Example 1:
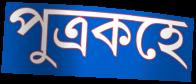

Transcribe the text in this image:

পুত্ৰকহে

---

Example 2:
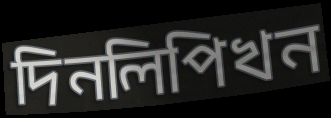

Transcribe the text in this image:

দিনলিপিখন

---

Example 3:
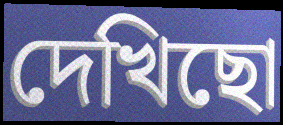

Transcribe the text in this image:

দেখিছো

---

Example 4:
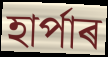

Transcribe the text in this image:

হাৰ্পাৰ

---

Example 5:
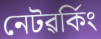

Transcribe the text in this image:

নেটৱৰ্কিং